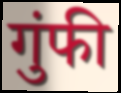
गुंफी